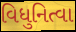
વિધુનિત્વા